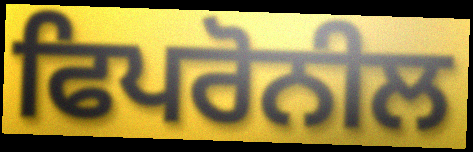
ਫਿਪਰੋਨੀਲ